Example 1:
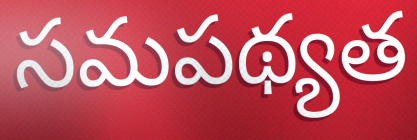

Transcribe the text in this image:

సమపథ్యత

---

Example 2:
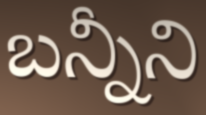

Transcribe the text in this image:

బన్నీని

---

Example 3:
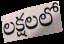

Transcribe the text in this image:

లక్షలలో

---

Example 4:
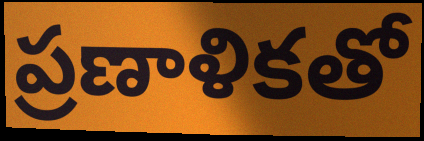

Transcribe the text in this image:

ప్రణాళికతో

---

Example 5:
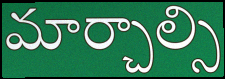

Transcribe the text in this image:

మార్చాల్సి